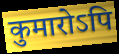
कुमारोऽपि